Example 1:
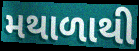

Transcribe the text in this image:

મથાળાથી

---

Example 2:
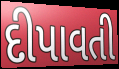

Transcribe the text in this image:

દીપાવતી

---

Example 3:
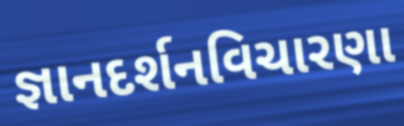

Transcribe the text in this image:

જ્ઞાનદર્શનવિચારણા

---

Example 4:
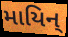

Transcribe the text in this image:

માયિન્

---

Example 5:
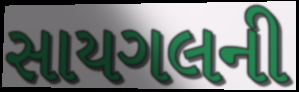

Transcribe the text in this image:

સાયગલની